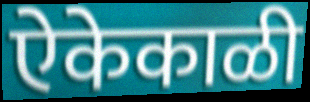
ऐकेकाळी